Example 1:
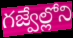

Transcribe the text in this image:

గజ్వేల్లోని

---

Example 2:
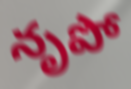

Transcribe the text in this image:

నృపో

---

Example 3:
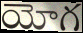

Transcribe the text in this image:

యోగ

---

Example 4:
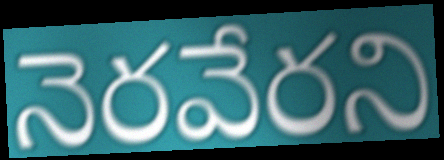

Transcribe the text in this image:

నెరవేరని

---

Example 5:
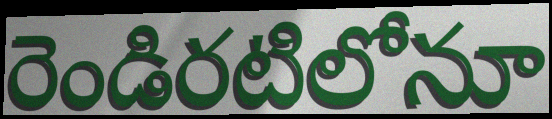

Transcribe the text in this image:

రెండిరటిలోనూ